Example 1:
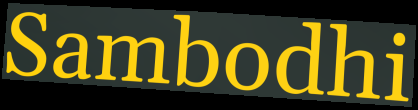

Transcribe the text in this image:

Sambodhi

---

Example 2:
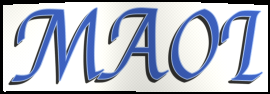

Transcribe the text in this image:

MAOI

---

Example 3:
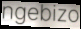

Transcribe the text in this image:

ngebizo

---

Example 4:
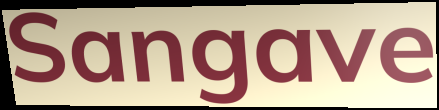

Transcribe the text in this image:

Sangave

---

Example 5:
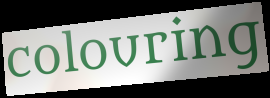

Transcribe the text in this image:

colouring